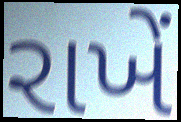
રાખેં